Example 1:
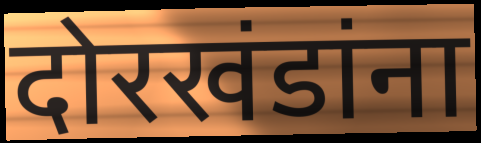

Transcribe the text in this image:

दोरखंडांना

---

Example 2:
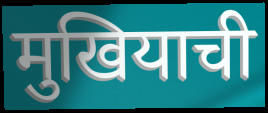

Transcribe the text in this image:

मुखियाची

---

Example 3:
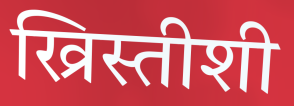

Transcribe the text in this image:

ख्रिस्तीशी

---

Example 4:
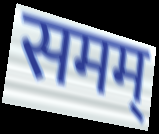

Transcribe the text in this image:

समम्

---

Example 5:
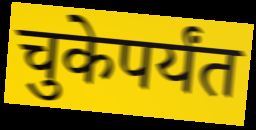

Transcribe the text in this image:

चुकेपर्यंत